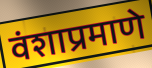
वंशाप्रमाणे